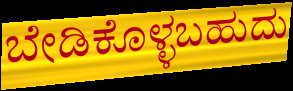
ಬೇಡಿಕೊಳ್ಳಬಹುದು